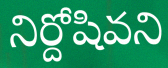
నిర్దోషివని